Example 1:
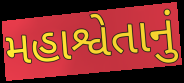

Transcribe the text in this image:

મહાશ્વેતાનું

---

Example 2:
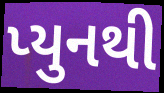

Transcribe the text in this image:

પ્યુનથી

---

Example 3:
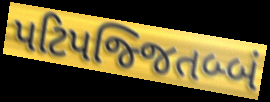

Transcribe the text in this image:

પટિપજ્જિતબ્બં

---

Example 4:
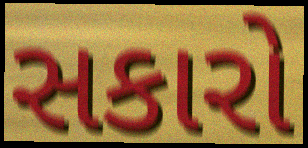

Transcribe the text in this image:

સકારો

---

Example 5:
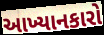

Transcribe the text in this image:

આખ્યાનકારો